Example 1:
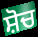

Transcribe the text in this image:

ਸ਼ੋਚ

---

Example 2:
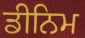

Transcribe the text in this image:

ਡੀਨਿਮ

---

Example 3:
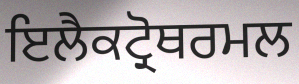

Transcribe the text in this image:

ਇਲੈਕਟ੍ਰੋਥਰਮਲ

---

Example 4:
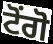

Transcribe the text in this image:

ਟੋਂਗੋ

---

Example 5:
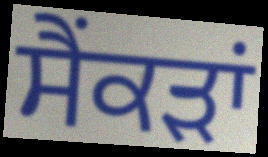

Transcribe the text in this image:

ਸੈਂਕੜਾਂ